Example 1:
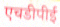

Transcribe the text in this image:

एचडीपीई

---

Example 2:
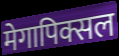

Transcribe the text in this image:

मेगापिक्सल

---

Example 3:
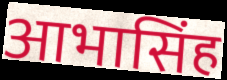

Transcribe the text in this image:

आभासिंह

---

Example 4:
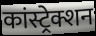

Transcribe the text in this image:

कांस्ट्रेक्शन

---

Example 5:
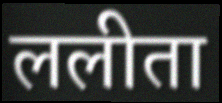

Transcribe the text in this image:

ललीता